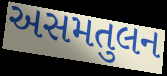
અસમતુલન